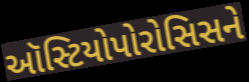
ઑસ્ટિયોપોરોસિસને